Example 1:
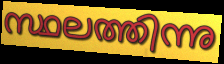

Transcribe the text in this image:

സ്ഥലത്തിന്നു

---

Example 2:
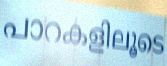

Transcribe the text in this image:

പാറകളിലൂടെ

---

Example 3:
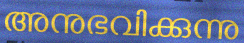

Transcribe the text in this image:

അനുഭവിക്കുന്നു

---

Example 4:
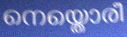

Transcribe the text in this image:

നെയ്തൊരീ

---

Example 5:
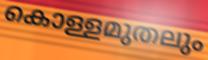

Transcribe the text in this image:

കൊള്ളമുതലും